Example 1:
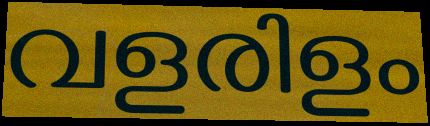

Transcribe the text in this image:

വളരിളം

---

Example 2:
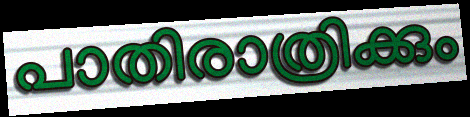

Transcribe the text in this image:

പാതിരാത്രിക്കും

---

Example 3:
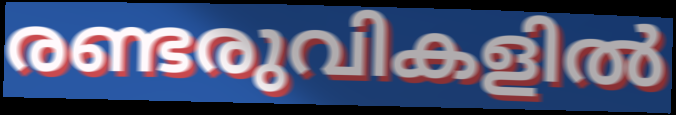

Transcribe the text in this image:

രണ്ടരുവികളിൽ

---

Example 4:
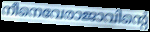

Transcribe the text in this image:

നീനെവേരാജാവിന്റെ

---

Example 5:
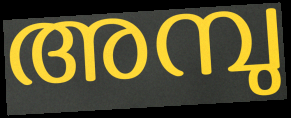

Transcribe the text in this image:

അമ്പു